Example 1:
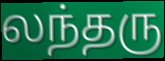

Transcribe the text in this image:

லந்தரு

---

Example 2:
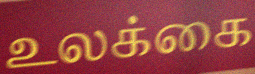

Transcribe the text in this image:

உலக்கை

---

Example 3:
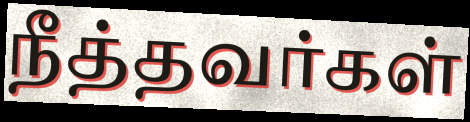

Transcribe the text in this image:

நீத்தவர்கள்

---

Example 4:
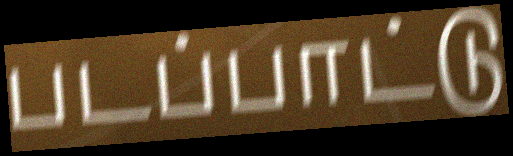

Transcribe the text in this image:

படப்பாட்டு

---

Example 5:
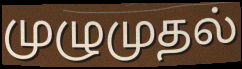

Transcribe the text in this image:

முழுமுதல்